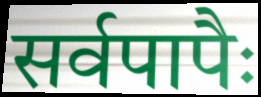
सर्वपापैः